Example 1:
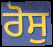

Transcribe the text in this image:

ਰੋਸੁ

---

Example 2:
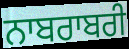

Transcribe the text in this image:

ਨਾਬਰਾਬਰੀ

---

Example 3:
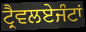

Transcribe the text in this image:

ਟ੍ਰੈਵਲਏਜੰਟਾਂ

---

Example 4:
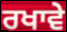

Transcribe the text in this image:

ਰਖਾਵੇ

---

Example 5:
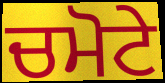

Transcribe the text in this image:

ਚਮੋਟੇ